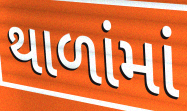
થાળાંમાં